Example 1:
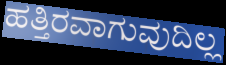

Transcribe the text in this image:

ಹತ್ತಿರವಾಗುವುದಿಲ್ಲ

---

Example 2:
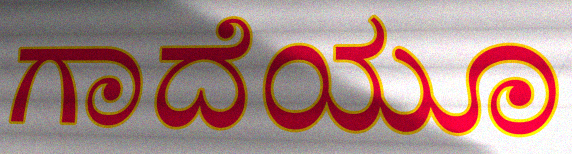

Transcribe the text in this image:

ಗಾದೆಯೂ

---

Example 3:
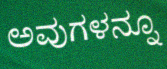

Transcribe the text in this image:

ಅವುಗಳನ್ನೂ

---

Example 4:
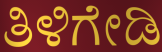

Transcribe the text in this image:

ತಿಳಿಗೇಡಿ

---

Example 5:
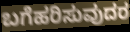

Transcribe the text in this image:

ಬಗೆಹರಿಸುವುದರ